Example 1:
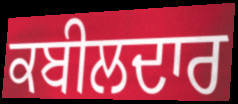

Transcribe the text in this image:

ਕਬੀਲਦਾਰ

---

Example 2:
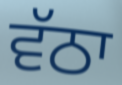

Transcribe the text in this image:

ਵੱਠਾ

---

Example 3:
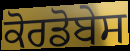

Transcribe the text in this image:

ਕੋਰਡੋਬੇਸ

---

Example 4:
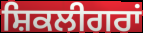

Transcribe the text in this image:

ਸ਼ਿਕਲੀਗਰਾਂ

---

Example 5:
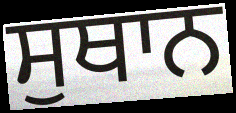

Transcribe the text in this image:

ਸੁਥਾਨ